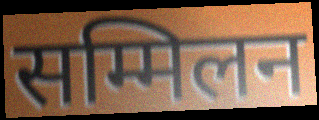
सम्मिलन